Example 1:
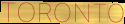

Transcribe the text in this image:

TORONTO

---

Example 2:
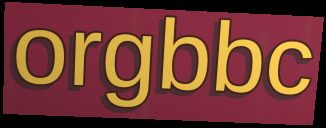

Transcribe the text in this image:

orgbbc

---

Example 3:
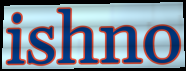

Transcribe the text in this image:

ishno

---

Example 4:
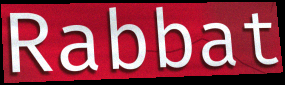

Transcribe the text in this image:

Rabbat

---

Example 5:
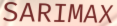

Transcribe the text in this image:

SARIMAX